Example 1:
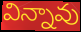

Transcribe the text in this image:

విన్నావు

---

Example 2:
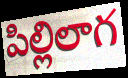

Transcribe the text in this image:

పిల్లిలాగ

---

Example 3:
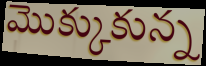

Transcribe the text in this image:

మొక్కుకున్న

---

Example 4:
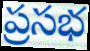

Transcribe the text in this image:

ప్రసభ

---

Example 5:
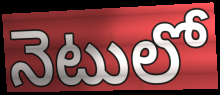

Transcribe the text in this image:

నెటులో